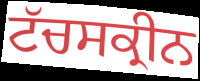
ਟੱਚਸਕ੍ਰੀਨ